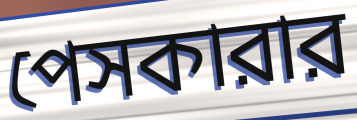
পেসকারার